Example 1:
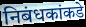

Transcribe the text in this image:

निबंधकांकडे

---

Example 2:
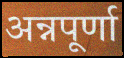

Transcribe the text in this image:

अन्नपूर्णा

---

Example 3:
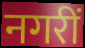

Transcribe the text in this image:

नगरीं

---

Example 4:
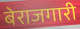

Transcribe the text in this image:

बेराजगारी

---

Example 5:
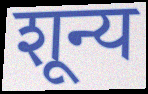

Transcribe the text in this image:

शून्य